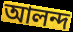
আলন্দ